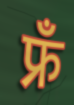
फ्रँ